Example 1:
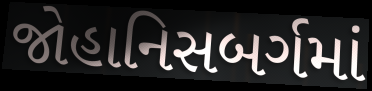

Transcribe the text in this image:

જોહાનિસબર્ગમાં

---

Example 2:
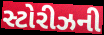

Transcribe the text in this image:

સ્ટોરીઝની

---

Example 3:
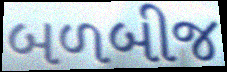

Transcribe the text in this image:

બળબીજ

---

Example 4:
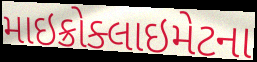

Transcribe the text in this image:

માઇક્રોક્લાઇમેટના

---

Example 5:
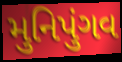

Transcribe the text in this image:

મુનિપુંગવ